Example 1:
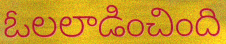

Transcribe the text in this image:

ఓలలాడించింది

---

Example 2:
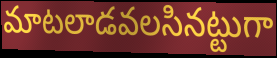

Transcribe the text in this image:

మాటలాడవలసినట్టుగా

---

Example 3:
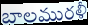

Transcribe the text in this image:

బాలమురళీ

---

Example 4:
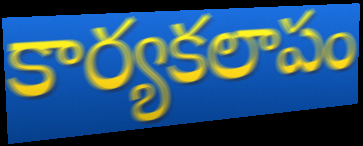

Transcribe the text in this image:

కార్యకలాపం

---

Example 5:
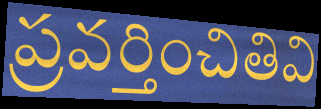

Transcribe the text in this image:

ప్రవర్తించితివి